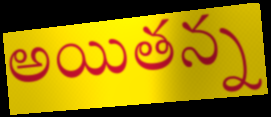
అయితన్న